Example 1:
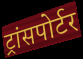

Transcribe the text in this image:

ट्रांसपोर्टर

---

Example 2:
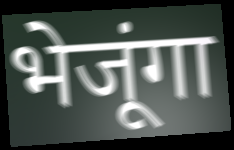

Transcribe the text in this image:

भेजूंगा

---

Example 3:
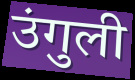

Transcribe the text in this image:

उंगुली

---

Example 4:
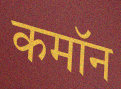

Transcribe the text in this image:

कमॉन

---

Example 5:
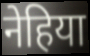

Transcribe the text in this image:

नेहिया